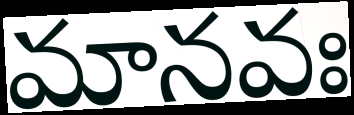
మానవః